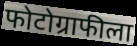
फोटोग्राफीला